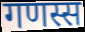
गणस्स